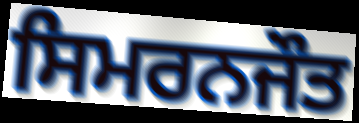
ਸਿਮਰਨਜੌਤ